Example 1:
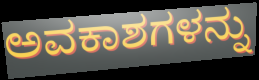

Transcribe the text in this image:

ಅವಕಾಶಗಳನ್ನು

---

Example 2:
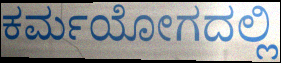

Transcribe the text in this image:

ಕರ್ಮಯೋಗದಲ್ಲಿ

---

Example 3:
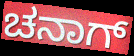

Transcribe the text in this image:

ಚನಾಗ್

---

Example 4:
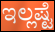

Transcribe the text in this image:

ಇಲ್ಲಷ್ಟೆ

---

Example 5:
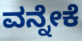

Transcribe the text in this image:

ವನ್ನೇಕೆ